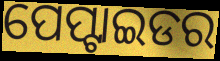
ପେପ୍ଟାଇଡର